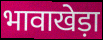
भावाखेड़ा